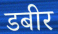
डबीर